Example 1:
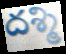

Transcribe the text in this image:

దశ్మి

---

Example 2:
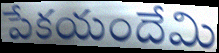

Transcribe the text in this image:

పేకయందేమి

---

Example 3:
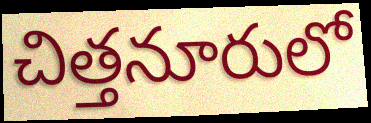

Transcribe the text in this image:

చిత్తనూరులో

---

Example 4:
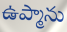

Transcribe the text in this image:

ఉప్మాను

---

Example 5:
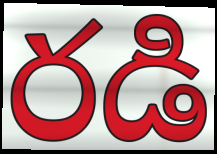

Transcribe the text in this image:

రడి